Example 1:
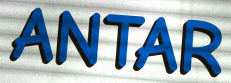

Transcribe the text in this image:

ANTAR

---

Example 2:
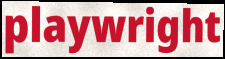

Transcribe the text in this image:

playwright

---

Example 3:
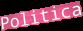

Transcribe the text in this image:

Politica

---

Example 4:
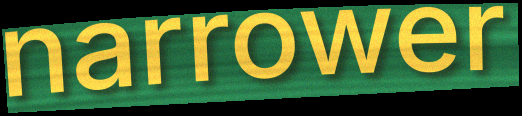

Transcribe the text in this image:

narrower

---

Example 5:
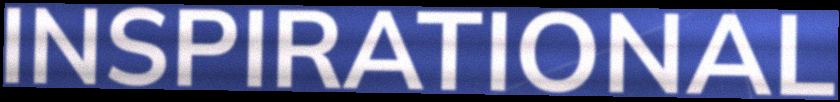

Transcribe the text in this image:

INSPIRATIONAL